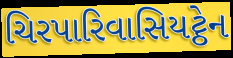
ચિરપારિવાસિયટ્ઠેન